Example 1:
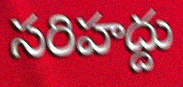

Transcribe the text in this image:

సరిహద్దు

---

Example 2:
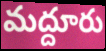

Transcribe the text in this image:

మద్దూరు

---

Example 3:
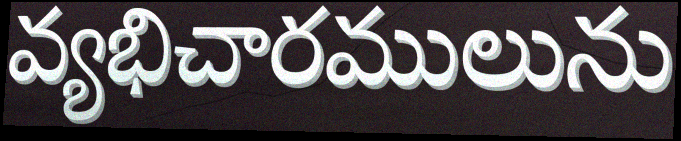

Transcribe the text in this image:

వ్యభిచారములును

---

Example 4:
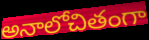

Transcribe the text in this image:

అనాలోచితంగా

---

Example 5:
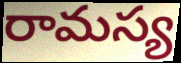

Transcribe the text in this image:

రామస్య